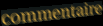
commentaire